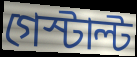
গেস্টাল্ট